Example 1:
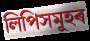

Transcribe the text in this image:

লিপিসমূহৰ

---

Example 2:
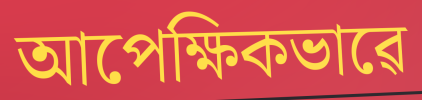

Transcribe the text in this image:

আপেক্ষিকভাৱে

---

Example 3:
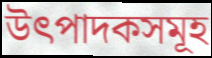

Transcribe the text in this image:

উৎপাদকসমূহ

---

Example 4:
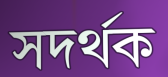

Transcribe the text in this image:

সদৰ্থক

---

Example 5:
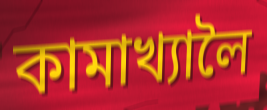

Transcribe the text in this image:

কামাখ্যালৈ